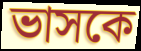
ভাসকে